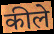
कीले